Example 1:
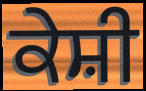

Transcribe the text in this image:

ਕੇਸ਼ੀ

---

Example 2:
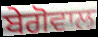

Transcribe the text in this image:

ਬੇਗੋਵਾਲ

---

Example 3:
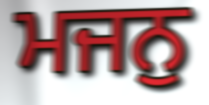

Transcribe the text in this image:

ਮਜਨੁ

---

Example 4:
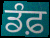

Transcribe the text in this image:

ਡੰਫ਼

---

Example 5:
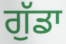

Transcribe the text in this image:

ਗੁੱਡਾ